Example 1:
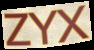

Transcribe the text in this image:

ZYX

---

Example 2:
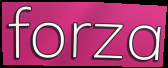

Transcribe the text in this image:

forza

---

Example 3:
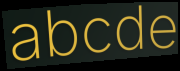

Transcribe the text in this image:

abcde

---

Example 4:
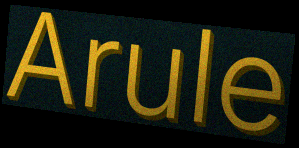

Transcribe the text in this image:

Arule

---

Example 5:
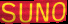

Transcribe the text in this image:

SUNO